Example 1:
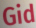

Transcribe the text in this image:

Gid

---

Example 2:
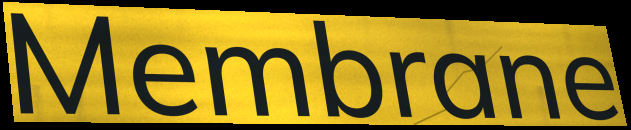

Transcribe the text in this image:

Membrane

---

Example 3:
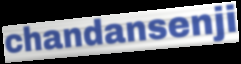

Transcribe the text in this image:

chandansenji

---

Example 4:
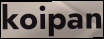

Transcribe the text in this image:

koipan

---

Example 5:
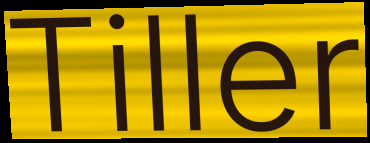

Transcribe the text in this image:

Tiller